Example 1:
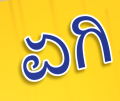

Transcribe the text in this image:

ಏಗಿ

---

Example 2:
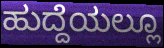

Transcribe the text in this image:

ಹುದ್ದೆಯಲ್ಲೂ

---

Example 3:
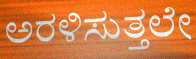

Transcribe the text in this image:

ಅರಳಿಸುತ್ತಲೇ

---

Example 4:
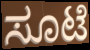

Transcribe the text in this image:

ಸೂಟೆ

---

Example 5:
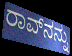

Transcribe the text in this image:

ರಾವ್‌ನನ್ನು